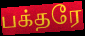
பக்தரே